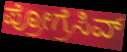
ಪ್ರೋಗ್ರೆಸಿವ್